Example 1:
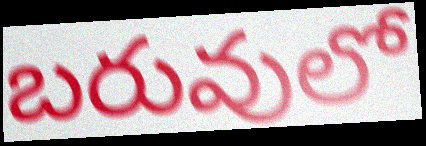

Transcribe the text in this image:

బరువులో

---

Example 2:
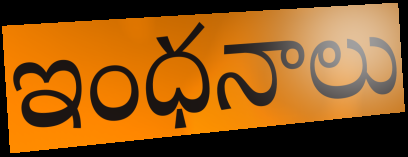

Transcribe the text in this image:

ఇంధనాలు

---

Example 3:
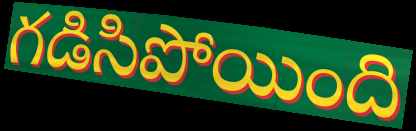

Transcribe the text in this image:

గడిసిపోయింది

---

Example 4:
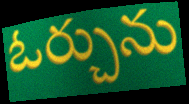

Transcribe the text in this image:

ఓర్చును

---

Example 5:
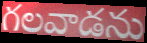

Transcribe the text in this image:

గలవాడను